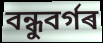
বন্ধুবৰ্গৰ